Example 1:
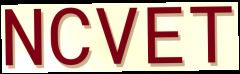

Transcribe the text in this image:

NCVET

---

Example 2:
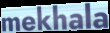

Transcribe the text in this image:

mekhala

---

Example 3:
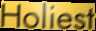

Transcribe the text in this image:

Holiest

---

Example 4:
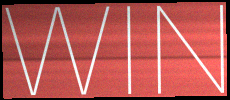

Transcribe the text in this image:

WIN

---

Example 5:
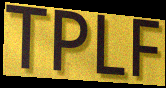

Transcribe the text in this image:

TPLF